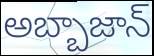
అబ్బాజాన్